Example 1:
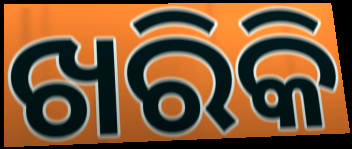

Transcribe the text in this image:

ଖରିକି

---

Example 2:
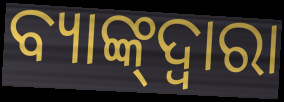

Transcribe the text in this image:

ବ୍ୟାଙ୍କ୍‌ଦ୍ୱାରା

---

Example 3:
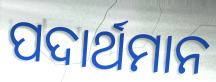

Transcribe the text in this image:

ପଦାର୍ଥମାନ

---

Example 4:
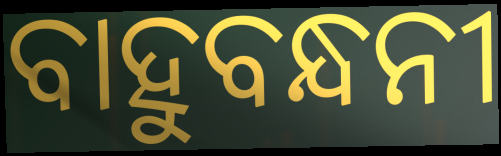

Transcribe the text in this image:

ବାହୁବନ୍ଧନୀ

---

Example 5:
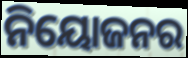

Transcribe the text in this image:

ନିୟୋଜନର